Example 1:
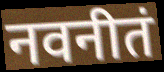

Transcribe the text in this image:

नवनीतं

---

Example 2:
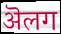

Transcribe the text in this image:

ऄलग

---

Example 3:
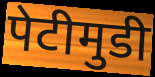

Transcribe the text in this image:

पेटीमुडी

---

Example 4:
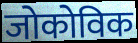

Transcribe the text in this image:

जोकोविक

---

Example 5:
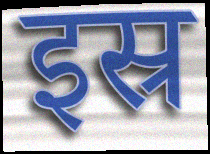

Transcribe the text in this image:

इस्र